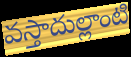
వస్తాదుల్లాంటి